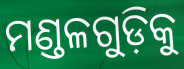
ମଣ୍ଡଳଗୁଡ଼ିକୁ